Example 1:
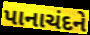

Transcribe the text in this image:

પાનાચંદને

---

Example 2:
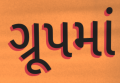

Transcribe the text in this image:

ગ્રૂપમાં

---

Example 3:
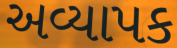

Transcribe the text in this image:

અવ્યાપક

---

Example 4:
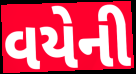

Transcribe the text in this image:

વયેની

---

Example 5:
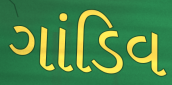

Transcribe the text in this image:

ગાંડિવ